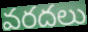
వరదలు